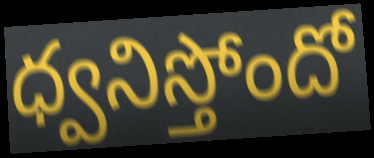
ధ్వనిస్తోందో